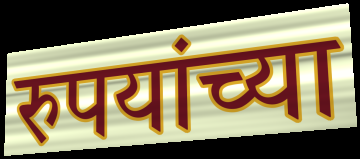
रुपयांच्या